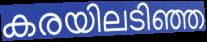
കരയിലടിഞ്ഞ